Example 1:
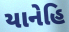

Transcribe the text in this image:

યાનેહિ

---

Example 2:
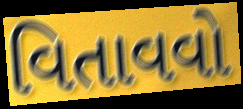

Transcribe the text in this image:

વિતાવવો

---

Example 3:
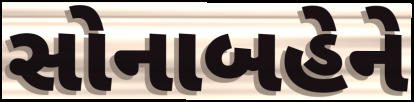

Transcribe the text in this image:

સોનાબહેને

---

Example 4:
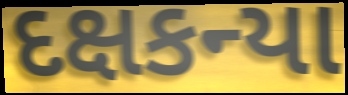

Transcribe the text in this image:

દક્ષકન્યા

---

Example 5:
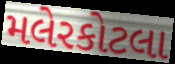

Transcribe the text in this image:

મલેરકોટલા